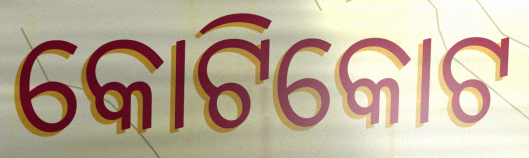
କୋଟିକୋଟ